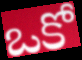
ఒకో